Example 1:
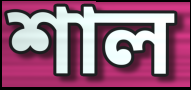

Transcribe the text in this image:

শাল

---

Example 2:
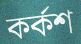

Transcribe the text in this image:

কৰ্কশ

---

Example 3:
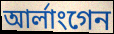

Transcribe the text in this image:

আৰ্লাংগেন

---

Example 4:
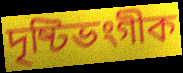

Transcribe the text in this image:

দৃষ্টিভংগীক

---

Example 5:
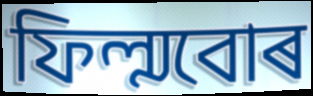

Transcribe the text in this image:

ফিল্মবোৰ